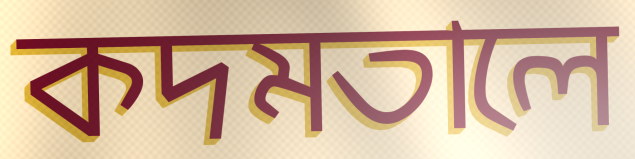
কদমতালে